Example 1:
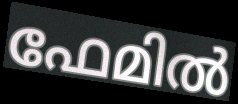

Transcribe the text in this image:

ഫേമിൽ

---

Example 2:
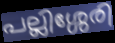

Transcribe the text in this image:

പല്ലിശ്ശേരി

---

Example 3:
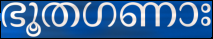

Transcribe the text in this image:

ഭൂതഗണാഃ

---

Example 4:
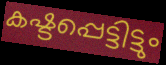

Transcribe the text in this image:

കഷ്ടപ്പെട്ടിട്ടും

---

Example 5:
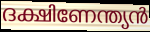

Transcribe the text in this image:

ദക്ഷിണേന്ത്യൻ